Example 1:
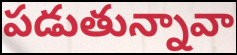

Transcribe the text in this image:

పడుతున్నావా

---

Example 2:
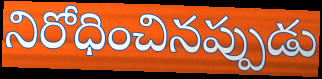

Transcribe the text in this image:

నిరోధించినప్పుడు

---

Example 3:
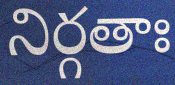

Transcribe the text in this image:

నిర్గతాః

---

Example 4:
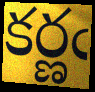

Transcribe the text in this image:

కర్ణఁ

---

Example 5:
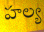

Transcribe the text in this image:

హల్య